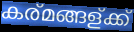
കര്മങ്ങള്ക്ക്